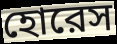
হোরেস